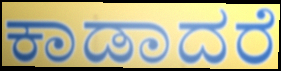
ಕಾಡಾದರೆ